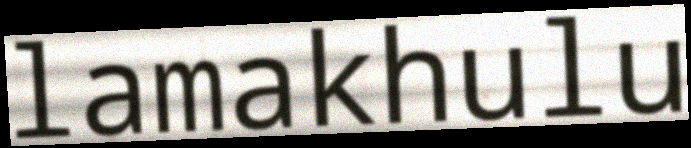
lamakhulu